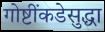
गोष्टींकडेसुद्धा